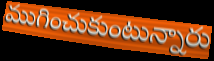
ముగించుకుంటున్నారు